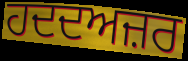
ਹਦਦਅਜ਼ਰ